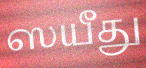
ஸயீது